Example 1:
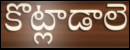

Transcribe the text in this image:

కొట్లాడాలె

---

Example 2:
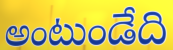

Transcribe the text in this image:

అంటుండేది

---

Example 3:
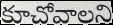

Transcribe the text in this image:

కూచోవాలని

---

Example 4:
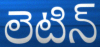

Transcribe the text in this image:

లెటిన్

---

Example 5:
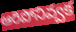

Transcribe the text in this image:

ఆరిపోనివ్వక